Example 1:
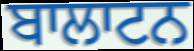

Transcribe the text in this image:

ਬਾਲਾਟਨ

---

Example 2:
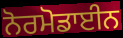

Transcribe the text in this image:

ਨੋਰਮੋਡਾਈਨ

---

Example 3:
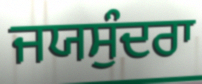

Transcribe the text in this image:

ਜਯਸੁੰਦਰਾ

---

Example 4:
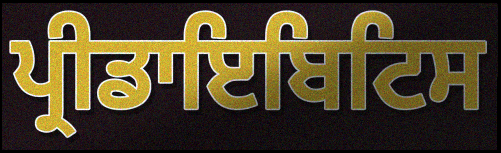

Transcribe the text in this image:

ਪ੍ਰੀਡਾਇਬਿਟਿਸ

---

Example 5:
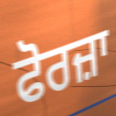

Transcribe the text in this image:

ਫੋਰਜ਼ਾ